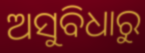
ଅସୁବିଧାରୁ